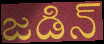
జడిన్